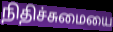
நிதிச்சுமையை